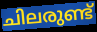
ചിലരുണ്ട്